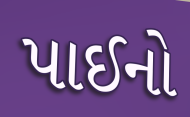
પાઈનો